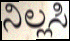
ನಿಲ್ಲಸಿ